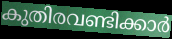
കുതിരവണ്ടിക്കാർ